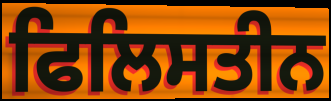
ਫਿਲਿਸਤੀਨ